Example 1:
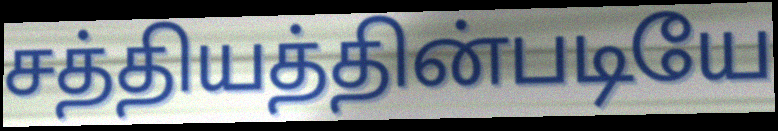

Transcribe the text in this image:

சத்தியத்தின்படியே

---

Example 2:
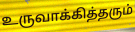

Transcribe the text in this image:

உருவாக்கித்தரும்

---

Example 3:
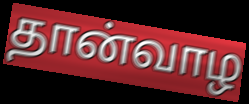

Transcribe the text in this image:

தான்வாழ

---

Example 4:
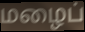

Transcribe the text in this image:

மழைப்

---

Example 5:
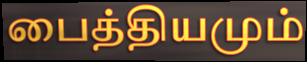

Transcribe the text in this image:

பைத்தியமும்